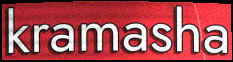
kramasha